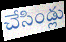
చేసిండ్లు